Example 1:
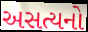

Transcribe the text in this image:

અસત્યનો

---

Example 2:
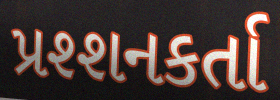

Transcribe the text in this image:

પ્રશ્શનકર્તા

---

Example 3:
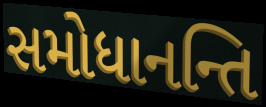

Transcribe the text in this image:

સમોધાનન્તિ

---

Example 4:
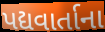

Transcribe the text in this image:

પદ્યવાર્તાના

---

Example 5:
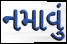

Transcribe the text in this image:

નમાવું